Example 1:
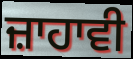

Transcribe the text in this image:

ਜ਼ਾਹਾਵੀ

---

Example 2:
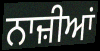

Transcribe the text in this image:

ਨਾਜ਼ੀਆਂ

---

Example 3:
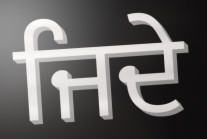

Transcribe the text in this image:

ਜਿਦੇ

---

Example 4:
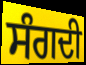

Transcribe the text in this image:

ਸੰਗਦੀ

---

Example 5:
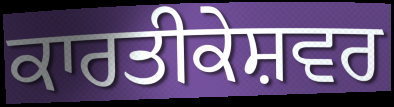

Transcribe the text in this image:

ਕਾਰਤੀਕੇਸ਼ਵਰ